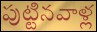
పుట్టినవాళ్ల